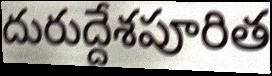
దురుద్దేశపూరిత